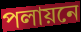
পলায়নে